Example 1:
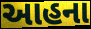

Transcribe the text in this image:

આહના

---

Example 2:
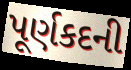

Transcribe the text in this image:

પૂર્ણકદની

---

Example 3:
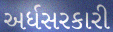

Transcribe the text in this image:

અર્ધસરકારી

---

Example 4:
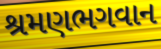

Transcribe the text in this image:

શ્રમણભગવાન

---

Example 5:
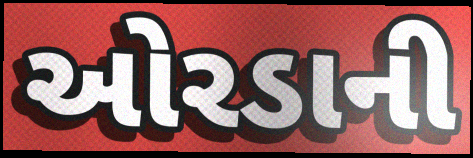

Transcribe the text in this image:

ઓરડાની